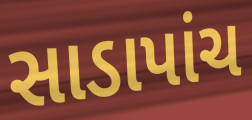
સાડાપાંચ